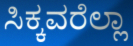
ಸಿಕ್ಕವರೆಲ್ಲಾ